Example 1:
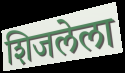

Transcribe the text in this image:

शिजलेला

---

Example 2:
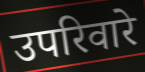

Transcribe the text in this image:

उपरिवारे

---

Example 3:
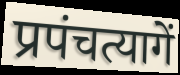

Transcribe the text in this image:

प्रपंचत्यागें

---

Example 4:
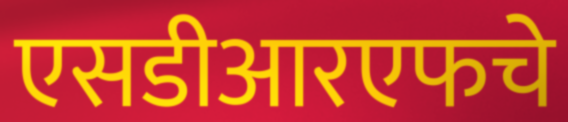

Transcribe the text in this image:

एसडीआरएफचे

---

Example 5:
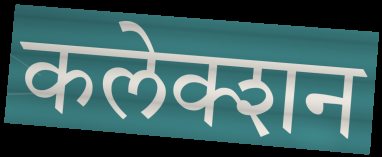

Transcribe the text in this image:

कलेक्शन